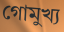
গোমুখ্য